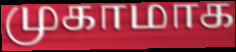
முகாமாக